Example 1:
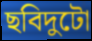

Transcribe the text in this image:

ছবিদুটো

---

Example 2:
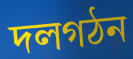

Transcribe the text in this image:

দলগঠন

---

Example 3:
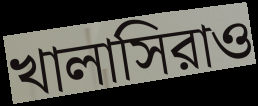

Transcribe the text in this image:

খালাসিরাও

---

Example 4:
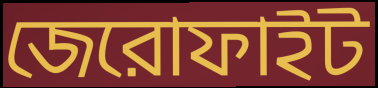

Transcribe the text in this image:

জেরোফাইট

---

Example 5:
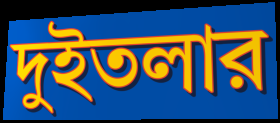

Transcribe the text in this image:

দুইতলার